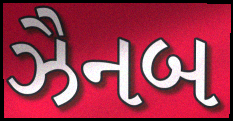
ઝૈનબ